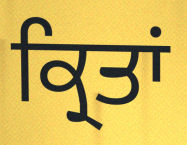
ਕ੍ਰਿਤਾਂ